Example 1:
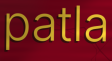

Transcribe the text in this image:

patla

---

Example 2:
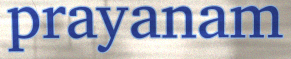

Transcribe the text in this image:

prayanam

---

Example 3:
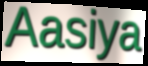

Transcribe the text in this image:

Aasiya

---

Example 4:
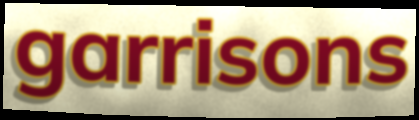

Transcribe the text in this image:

garrisons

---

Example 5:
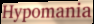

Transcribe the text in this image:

Hypomania